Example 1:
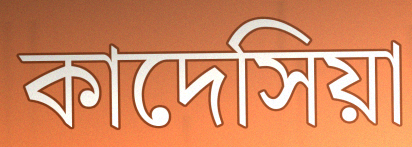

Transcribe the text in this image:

কাদেসিয়া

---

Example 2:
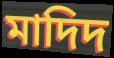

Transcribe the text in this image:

মাদিদ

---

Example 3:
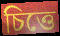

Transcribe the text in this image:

চিত্তে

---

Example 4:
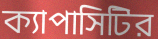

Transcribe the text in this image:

ক্যাপাসিটির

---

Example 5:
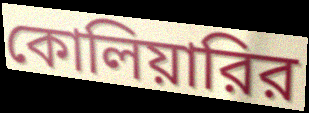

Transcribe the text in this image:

কোলিয়ারির